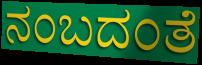
ನಂಬದಂತೆ